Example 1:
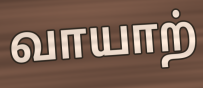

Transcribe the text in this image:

வாயாற்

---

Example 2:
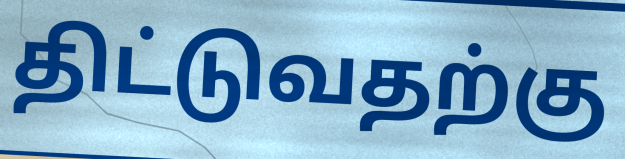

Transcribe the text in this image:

திட்டுவதற்கு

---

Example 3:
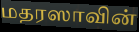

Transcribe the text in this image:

மதரஸாவின்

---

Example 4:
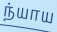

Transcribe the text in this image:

ந்யாய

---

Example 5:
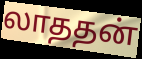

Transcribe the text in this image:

லாததன்